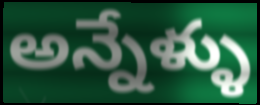
అన్నేళ్ళు